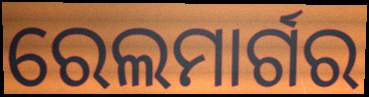
ରେଲମାର୍ଗର